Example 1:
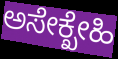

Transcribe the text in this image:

ಅಸೇಕ್ಖೇಹಿ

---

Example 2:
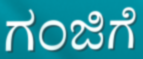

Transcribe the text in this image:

ಗಂಜಿಗೆ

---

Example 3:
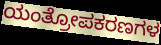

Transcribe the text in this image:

ಯಂತ್ರೋಪಕರಣಗಳ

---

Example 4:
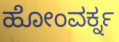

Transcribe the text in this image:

ಹೋಂವರ್ಕ್ನ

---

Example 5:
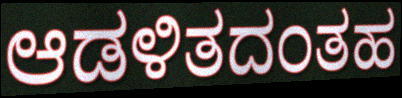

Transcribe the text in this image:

ಆಡಳಿತದಂತಹ